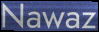
Nawaz